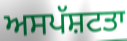
ਅਸਪੱਸ਼ਟਤਾ